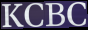
KCBC